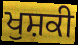
ਖੁਸ਼ਕੀ